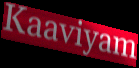
Kaaviyam